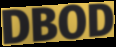
DBOD